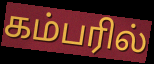
கம்பரில்